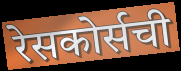
रेसकोर्सची